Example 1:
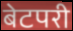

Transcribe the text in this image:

बेटपरी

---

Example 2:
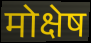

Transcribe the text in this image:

मोक्षेष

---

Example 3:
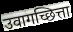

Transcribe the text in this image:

उवागच्छित्ता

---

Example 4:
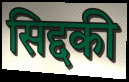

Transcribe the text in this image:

सिद्दकी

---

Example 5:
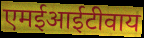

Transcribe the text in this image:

एमईआईटीवाय